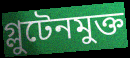
গ্লুটেনমুক্ত